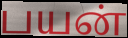
பயன்